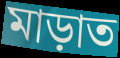
মাড়াত